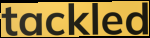
tackled